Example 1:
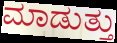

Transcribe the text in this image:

ಮಾಡುತ್ತು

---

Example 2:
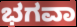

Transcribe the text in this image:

ಭಗವಾ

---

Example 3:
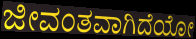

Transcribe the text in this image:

ಜೀವಂತವಾಗಿದೆಯೋ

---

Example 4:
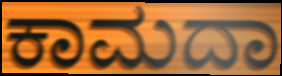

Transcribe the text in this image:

ಕಾಮದಾ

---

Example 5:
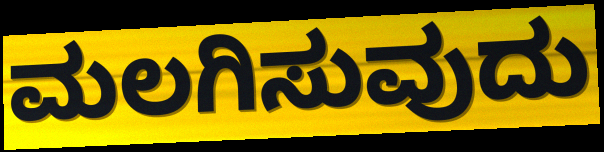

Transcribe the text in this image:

ಮಲಗಿಸುವುದು